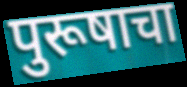
पुरूषाचा